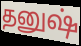
தனுஷ்